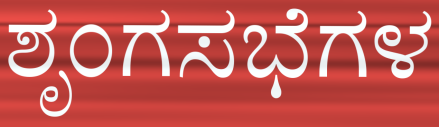
ಶೃಂಗಸಭೆಗಳ